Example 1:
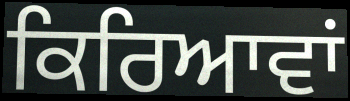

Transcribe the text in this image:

ਕਿਰਿਆਵਾਂ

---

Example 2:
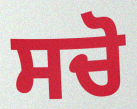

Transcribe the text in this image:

ਸਚੋ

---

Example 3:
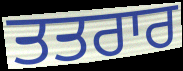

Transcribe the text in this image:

ਤਤਰਾਰ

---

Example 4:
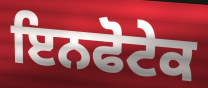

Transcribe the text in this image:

ਇਨਫੋਟੇਕ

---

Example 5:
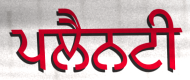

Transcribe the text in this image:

ਪਲੈਨਟੀ